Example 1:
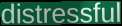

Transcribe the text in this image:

distressful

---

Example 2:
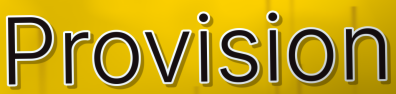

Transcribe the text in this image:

Provision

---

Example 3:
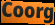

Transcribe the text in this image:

Coorg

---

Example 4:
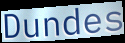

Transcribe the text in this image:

Dundes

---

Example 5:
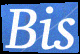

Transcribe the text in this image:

Bis